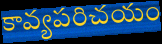
కావ్యపరిచయం